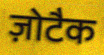
ज़ोटैक